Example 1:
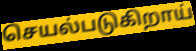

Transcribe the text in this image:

செயல்படுகிறாய்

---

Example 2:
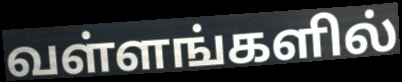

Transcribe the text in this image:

வள்ளங்களில்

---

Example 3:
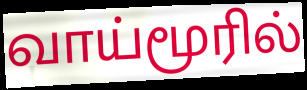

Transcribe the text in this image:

வாய்மூரில்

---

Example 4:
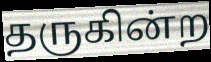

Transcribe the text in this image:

தருகின்ற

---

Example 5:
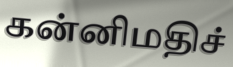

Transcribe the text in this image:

கன்னிமதிச்